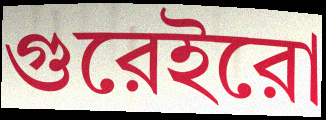
গুরেইরো